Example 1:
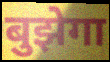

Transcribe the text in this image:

बुझेगा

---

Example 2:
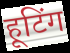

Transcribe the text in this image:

हूटिंग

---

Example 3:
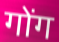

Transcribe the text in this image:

गोंग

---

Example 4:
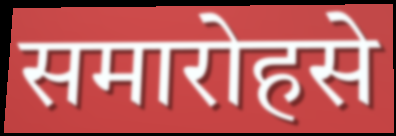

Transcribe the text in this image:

समारोहसे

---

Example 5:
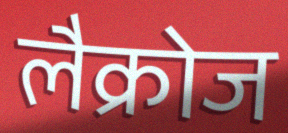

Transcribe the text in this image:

लैक्रोज